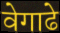
वेगाढे